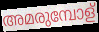
അമരുമ്പോള്